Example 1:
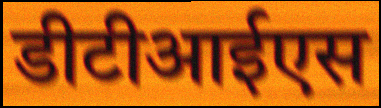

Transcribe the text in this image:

डीटीआईएस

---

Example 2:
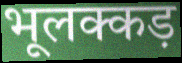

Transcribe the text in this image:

भूलक्कड़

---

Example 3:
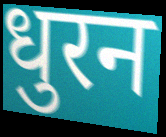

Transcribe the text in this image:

धुरन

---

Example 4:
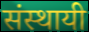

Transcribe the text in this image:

संस्थायी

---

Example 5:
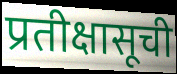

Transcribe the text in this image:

प्रतीक्षासूची